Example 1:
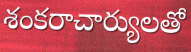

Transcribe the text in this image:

శంకరాచార్యులతో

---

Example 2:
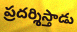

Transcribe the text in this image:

ప్రదర్శిస్తాడు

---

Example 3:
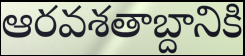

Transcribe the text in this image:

ఆరవశతాబ్దానికి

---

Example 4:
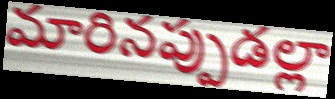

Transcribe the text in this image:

మారినప్పుడల్లా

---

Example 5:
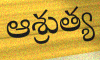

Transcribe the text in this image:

ఆశ్రుత్య